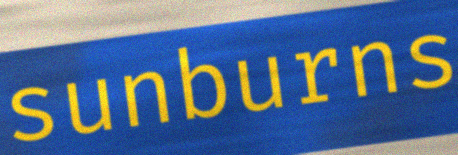
sunburns